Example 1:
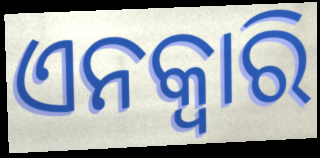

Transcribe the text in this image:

ଏନକ୍ଵାରି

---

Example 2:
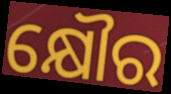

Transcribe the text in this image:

କ୍ଷୌର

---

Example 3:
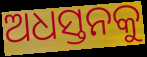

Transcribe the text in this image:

ଅଧସ୍ତନକୁ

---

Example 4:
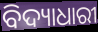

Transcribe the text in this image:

ବିଦ୍ୟାଧାରୀ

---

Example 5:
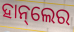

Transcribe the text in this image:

ହାନ୍‌ଲେର